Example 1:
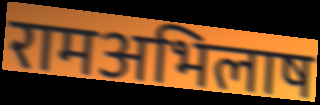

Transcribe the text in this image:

रामअभिलाष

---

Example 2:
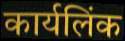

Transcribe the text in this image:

कार्यलिंक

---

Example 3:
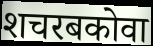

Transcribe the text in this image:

शचरबकोवा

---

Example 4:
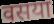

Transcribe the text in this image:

वसया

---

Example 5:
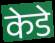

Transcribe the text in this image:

केडे